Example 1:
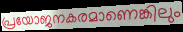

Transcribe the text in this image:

പ്രയോജനകരമാണെങ്കിലും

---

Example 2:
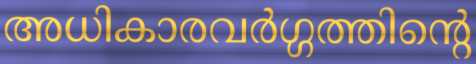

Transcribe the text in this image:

അധികാരവർഗ്ഗത്തിന്റെ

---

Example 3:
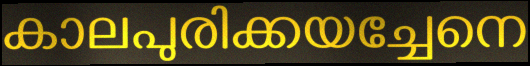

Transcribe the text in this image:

കാലപുരിക്കയച്ചേനെ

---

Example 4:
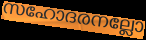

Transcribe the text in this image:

സഹോദരനല്ലോ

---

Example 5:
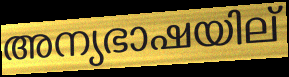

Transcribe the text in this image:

അന്യഭാഷയില്